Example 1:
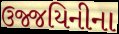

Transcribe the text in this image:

ઉજ્જયિનીના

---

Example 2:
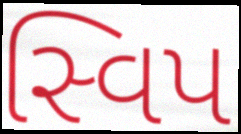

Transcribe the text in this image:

સ્વિપ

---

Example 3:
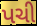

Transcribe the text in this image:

પચી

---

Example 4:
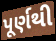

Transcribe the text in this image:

પૂર્ણથી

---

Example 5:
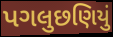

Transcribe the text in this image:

પગલુછણિયું